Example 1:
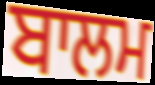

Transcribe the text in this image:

ਬਾਲਮ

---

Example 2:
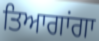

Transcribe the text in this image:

ਤਿਆਗਾਂਗਾ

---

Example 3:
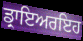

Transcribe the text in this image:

ਡ੍ਰਾਇਅਰਇਹ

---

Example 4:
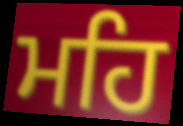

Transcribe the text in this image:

ਮਹਿ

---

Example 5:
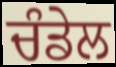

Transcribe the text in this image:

ਚੰਡੇਲ